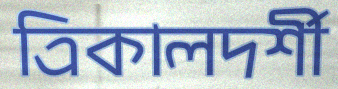
ত্রিকালদর্শী